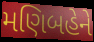
મણિબહેને